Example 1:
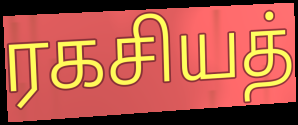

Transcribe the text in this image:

ரகசியத்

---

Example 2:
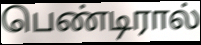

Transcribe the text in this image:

பெண்டிரால்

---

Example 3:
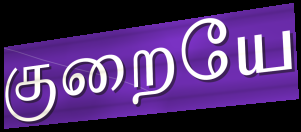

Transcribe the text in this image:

குறையே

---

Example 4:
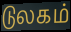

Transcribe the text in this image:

டுலகம்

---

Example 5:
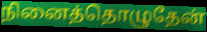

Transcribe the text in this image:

நினைத்தொழுதேன்